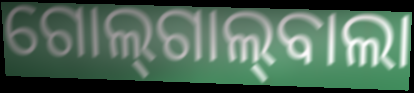
ଗୋଲ୍‍ଗାଲ୍‍ବାଲା